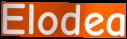
Elodea